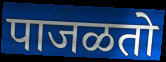
पाजळतो